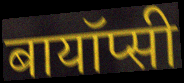
बायॉप्सी